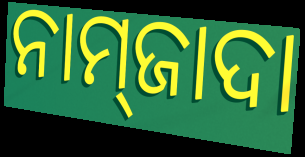
ନାମ୍‌ଜାଦା